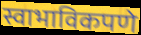
स्वाभाविकपणे